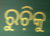
ରୁଚ଼ିକୁ